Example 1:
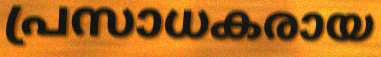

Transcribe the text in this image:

പ്രസാധകരായ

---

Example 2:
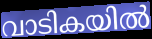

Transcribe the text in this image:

വാടികയിൽ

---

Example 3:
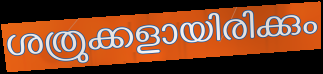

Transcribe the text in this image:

ശത്രുക്കളായിരിക്കും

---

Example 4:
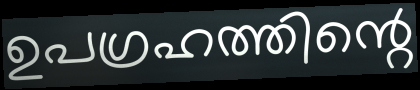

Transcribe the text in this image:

ഉപഗ്രഹത്തിന്റെ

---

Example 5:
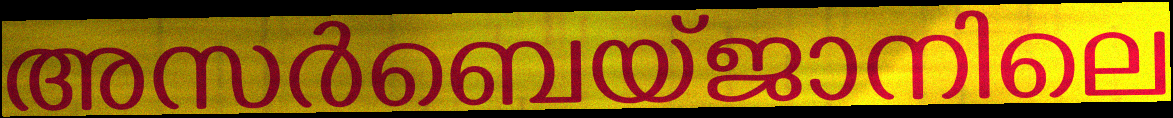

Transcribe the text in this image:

അസർബെയ്ജാനിലെ